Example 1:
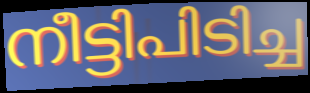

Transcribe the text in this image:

നീട്ടിപിടിച്ച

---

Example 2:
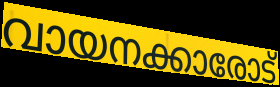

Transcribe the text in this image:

വായനക്കാരോട്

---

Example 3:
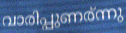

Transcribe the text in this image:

വാരിപ്പുണര്ന്നു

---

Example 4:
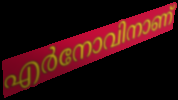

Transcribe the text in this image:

എർനോവിനാണ്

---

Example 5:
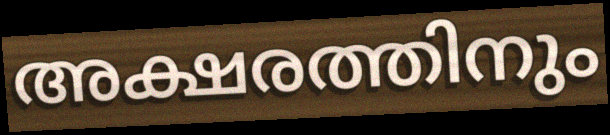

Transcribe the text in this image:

അക്ഷരത്തിനും